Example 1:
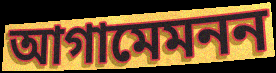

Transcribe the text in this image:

আগামেমনন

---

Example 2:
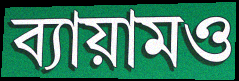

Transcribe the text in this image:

ব্যায়ামও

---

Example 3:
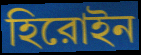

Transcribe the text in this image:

হিরোইন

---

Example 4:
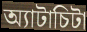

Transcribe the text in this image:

অ্যাটাচিটা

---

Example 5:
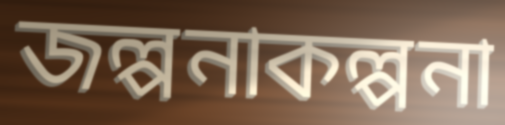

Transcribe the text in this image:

জল্পনাকল্পনা